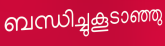
ബന്ധിച്ചുകൂടാഞ്ഞു